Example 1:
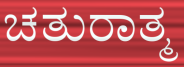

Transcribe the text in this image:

ಚತುರಾತ್ಮ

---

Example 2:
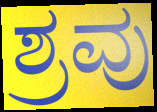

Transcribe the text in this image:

ಶ್ರವು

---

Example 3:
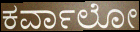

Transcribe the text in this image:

ಕರ್ವಾಲೋ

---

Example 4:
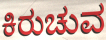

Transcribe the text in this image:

ಕಿರುಚುವ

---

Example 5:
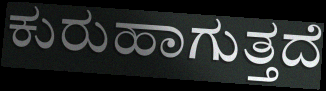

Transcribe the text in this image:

ಕುರುಹಾಗುತ್ತದೆ